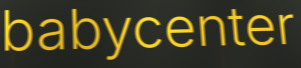
babycenter